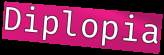
Diplopia